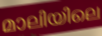
മാലിയിലെ